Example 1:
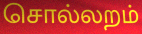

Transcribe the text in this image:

சொல்லறம்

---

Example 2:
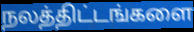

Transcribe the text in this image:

நலத்திட்டங்களை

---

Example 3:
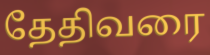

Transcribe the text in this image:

தேதிவரை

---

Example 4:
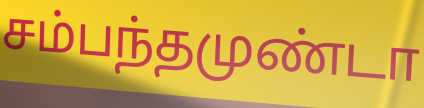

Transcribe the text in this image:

சம்பந்தமுண்டா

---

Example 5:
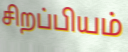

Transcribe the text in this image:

சிறப்பியம்